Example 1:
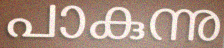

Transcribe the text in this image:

പാകുന്നു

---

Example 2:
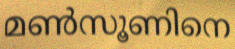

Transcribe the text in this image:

മൺസൂണിനെ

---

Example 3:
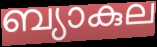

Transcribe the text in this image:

ബ്യാകുല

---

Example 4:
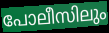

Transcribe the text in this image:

പോലീസിലും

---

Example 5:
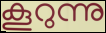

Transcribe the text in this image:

കൂറുന്നു